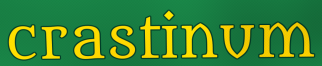
crastinum